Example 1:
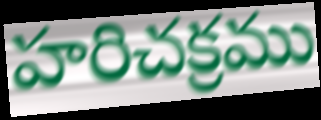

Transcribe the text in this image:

హరిచక్రము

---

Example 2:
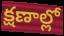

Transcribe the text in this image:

క్షణాల్లో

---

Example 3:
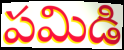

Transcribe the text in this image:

పమిడి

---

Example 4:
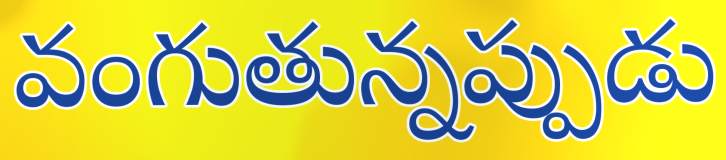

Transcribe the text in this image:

వంగుతున్నప్పుడు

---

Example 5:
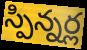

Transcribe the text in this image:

స్పిన్నర్ల